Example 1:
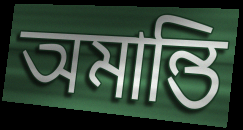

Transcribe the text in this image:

অমান্তি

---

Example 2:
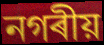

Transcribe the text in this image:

নগৰীয়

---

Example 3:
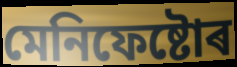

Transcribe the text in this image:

মেনিফেষ্টোৰ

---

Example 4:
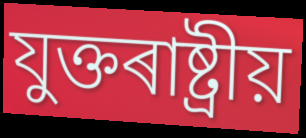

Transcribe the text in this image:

যুক্তৰাষ্ট্ৰীয়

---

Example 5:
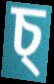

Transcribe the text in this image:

চ্